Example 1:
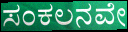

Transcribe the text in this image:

ಸಂಕಲನವೇ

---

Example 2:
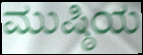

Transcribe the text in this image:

ಮುಷ್ಠಿಯ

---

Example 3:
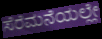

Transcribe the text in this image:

ಸೆರೆಮನೆಯಲ್ಲೇ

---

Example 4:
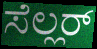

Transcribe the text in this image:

ಸೆಲ್ಲರ್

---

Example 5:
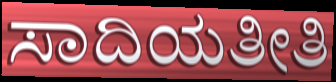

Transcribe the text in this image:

ಸಾದಿಯತೀತಿ